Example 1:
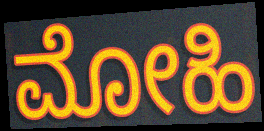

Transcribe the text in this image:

ಮೋಹಿ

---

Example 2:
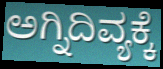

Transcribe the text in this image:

ಅಗ್ನಿದಿವ್ಯಕ್ಕೆ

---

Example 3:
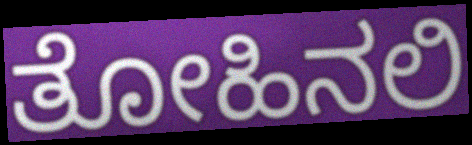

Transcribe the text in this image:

ತೋಹಿನಲಿ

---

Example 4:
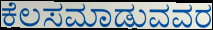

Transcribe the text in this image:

ಕೆಲಸಮಾಡುವವರ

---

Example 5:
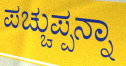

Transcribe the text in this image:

ಪಚ್ಚುಪ್ಪನ್ನಾ